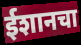
ईशानचा